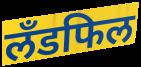
लँडफिल